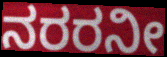
ನರರನೀ